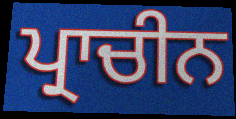
ਪ੍ਰਾਚੀਨ